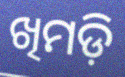
ଖିମଡ଼ି